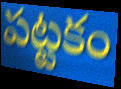
పట్టకం